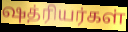
ஷத்ரியர்கள்